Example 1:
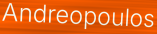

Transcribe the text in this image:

Andreopoulos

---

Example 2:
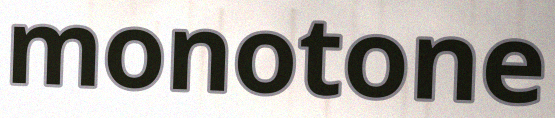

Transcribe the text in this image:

monotone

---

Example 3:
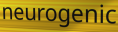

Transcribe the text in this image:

neurogenic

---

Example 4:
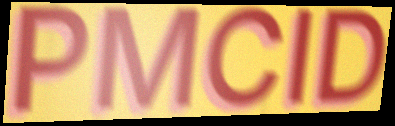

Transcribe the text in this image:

PMCID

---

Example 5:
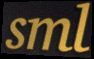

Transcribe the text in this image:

sml